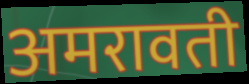
अमरावती